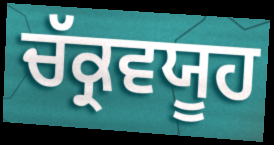
ਚੱਕ੍ਰਵਯੂਹ